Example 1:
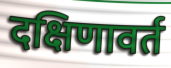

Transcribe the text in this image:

दक्षिणावर्त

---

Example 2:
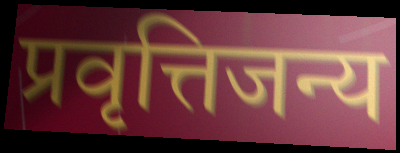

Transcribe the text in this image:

प्रवृत्तिजन्य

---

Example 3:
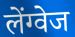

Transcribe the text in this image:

लेंग्वेज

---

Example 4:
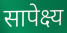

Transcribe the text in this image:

सापेक्ष्य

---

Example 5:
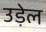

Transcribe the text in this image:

उड़ेल